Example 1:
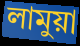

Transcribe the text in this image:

লামুয়া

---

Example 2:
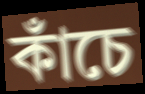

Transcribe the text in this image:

কাঁচে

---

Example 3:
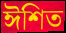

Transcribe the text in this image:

ঈশিত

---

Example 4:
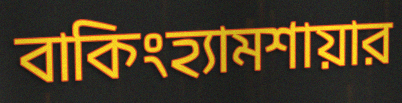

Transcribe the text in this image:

বাকিংহ্যামশায়ার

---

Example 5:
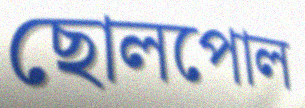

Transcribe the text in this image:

ছোলপোল